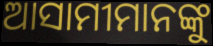
ଆସାମୀମାନଙ୍କୁ